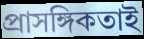
প্রাসঙ্গিকতাই